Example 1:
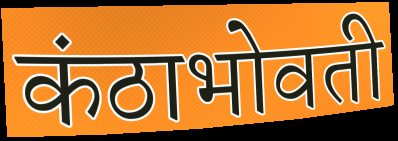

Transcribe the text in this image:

कंठाभोवती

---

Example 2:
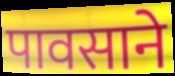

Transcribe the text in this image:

पावसाने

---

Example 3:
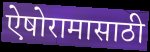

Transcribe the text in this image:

ऐषोरामासाठी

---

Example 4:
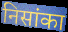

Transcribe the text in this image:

निसांका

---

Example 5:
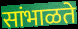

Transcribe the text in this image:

सांभाळते